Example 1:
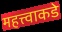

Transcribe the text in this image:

महत्त्वाकडे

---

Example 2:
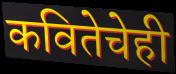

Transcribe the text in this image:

कवितेचेही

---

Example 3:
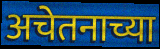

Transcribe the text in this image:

अचेतनाच्या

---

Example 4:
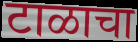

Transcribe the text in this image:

टाळाचा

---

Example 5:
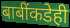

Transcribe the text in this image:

बाबींकडेही